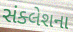
સંક્લેશના